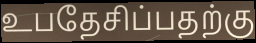
உபதேசிப்பதற்கு